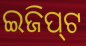
ଇଜିପ୍‍ଟ